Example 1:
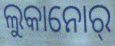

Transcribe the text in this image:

ଲୁକାନୋର୍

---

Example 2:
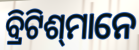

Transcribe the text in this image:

ବ୍ରିଟିଶ୍‌ମାନେ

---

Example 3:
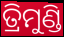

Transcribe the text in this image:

ତ୍ରିମୁଣ୍ଡି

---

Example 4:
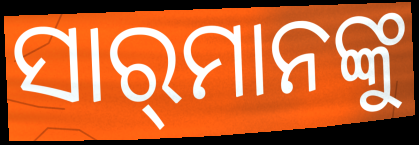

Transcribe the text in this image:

ସାର୍‌ମାନଙ୍କୁ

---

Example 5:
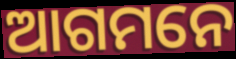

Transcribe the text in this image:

ଆଗମନେ